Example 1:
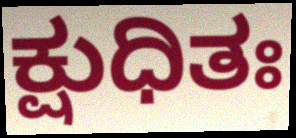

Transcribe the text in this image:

ಕ್ಷುಧಿತಃ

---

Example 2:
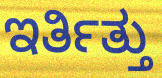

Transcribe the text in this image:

ಇರ್ತಿತ್ತು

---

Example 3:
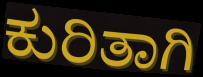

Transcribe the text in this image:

ಕುರಿತಾಗಿ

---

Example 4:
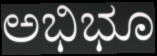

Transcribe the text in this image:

ಅಭಿಭೂ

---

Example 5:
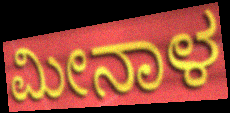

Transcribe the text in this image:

ಮೀನಾಳ